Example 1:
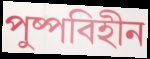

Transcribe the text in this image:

পুষ্পবিহীন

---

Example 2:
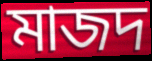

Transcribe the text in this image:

মাজদ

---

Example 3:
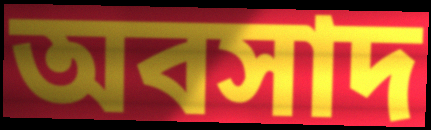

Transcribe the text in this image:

অবসাদ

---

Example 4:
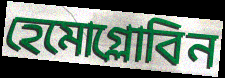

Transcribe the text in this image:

হেমোগ্লোবিন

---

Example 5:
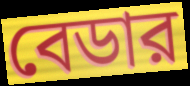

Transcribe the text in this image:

বেডার